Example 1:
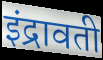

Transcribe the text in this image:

इंद्रावती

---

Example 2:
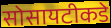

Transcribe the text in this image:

सोसायटीकडे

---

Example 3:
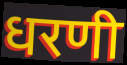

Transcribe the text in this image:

धरणी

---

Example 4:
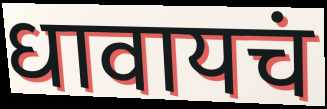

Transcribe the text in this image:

धावायचं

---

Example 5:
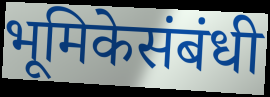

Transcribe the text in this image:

भूमिकेसंबंधी